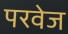
परवेज